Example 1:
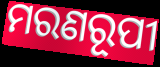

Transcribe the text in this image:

ମରଣରୂପୀ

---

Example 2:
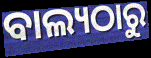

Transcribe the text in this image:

ବାଲ୍ୟଠାରୁ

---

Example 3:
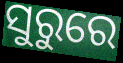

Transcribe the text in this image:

ସୁରୁରେ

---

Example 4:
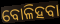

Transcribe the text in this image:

ବୋଳିହବା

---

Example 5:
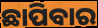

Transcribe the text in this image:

ଛାପିବାର